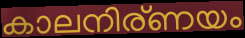
കാലനിര്ണയം